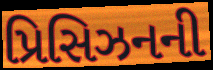
પ્રિસિઝનની